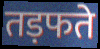
तड़फते